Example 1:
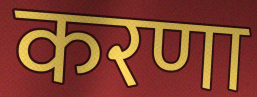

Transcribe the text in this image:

करणा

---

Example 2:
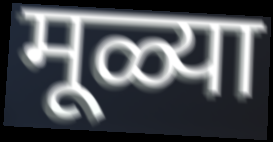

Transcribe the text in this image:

मूळ्या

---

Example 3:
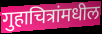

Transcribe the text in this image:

गुहाचित्रांमधील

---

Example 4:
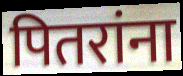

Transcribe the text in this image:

पितरांना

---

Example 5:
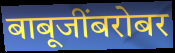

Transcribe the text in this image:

बाबूजींबरोबर